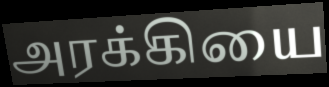
அரக்கியை